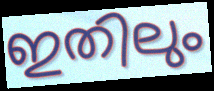
ഇതിലും